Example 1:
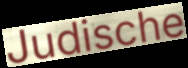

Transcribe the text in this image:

Judische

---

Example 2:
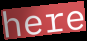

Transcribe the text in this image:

here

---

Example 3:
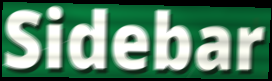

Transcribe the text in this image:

Sidebar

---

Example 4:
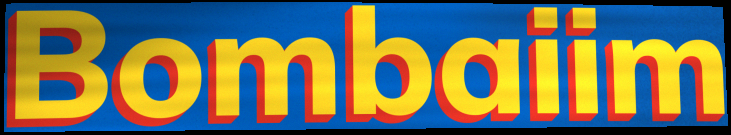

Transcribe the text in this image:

Bombaiim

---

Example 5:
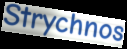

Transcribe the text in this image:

Strychnos